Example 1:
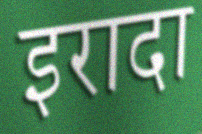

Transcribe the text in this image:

इरादा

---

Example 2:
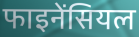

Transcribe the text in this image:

फाइनेंसियल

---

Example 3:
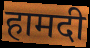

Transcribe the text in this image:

हामदी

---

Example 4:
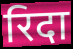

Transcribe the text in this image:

रिदा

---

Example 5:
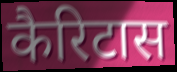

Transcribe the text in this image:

कैरिटास